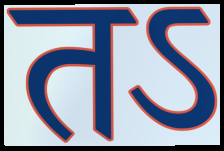
तऽ